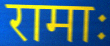
रामाः